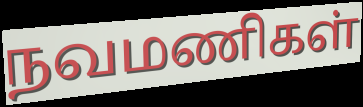
நவமணிகள்